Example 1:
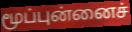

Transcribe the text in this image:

மூப்புன்னைச்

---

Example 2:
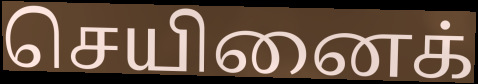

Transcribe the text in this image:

செயினைக்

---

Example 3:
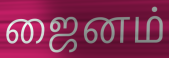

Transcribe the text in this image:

ஜைனம்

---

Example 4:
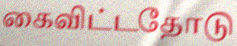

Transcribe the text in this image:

கைவிட்டதோடு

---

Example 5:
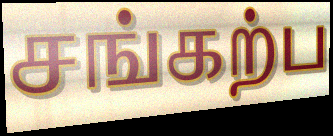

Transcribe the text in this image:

சங்கற்ப